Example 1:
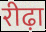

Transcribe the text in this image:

रीढ़ा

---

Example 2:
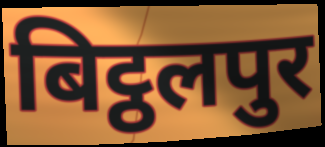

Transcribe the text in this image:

बिट्ठलपुर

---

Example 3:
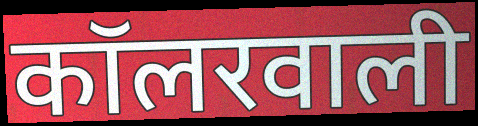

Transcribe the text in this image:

कॉलरवाली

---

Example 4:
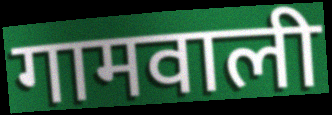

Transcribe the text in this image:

गामवाली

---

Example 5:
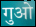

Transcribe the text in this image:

गुओ